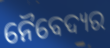
ନୈବେଦ୍ୟର